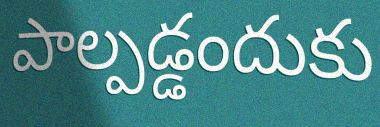
పాల్పడ్డందుకు